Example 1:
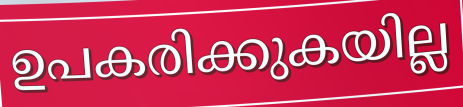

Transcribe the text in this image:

ഉപകരിക്കുകയില്ല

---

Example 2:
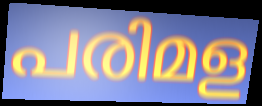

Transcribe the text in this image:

പരിമള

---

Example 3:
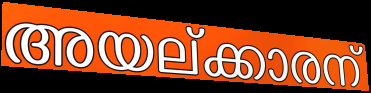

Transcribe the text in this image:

അയല്ക്കാരന്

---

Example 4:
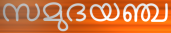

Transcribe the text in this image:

സമുദയഞ്ച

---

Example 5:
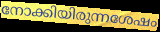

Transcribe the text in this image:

നോക്കിയിരുന്നശേഷം